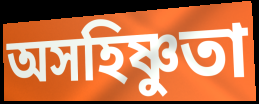
অসহিষ্ণুতা